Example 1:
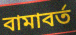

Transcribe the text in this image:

বামাবর্ত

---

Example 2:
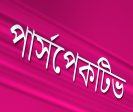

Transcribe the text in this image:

পার্সপেকটিভ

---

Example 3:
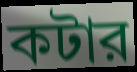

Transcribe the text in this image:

কটার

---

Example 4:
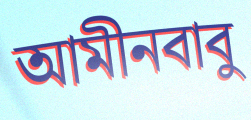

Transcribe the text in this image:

আমীনবাবু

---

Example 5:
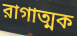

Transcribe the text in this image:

রাগাত্মক